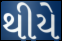
થીયે